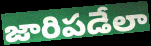
జారిపడేలా